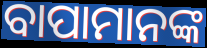
ବାପାମାନଙ୍କ